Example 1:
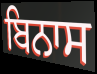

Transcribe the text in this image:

ਬਿਨਾਸ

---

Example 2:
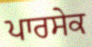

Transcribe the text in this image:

ਪਾਰਸੇਕ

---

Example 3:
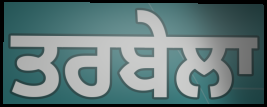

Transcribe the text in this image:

ਤਰਬੇਲਾ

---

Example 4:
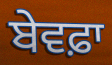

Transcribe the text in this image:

ਬੇਵਫ਼ਾ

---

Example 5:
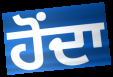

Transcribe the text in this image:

ਹੋਂਦਾ